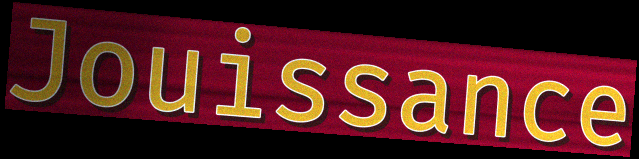
Jouissance